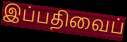
இப்பதிவைப்